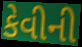
કેવીની